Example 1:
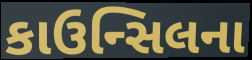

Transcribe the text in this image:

કાઉન્સિલના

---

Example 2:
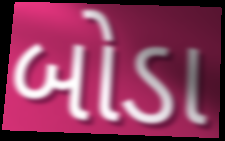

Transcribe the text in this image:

બોડા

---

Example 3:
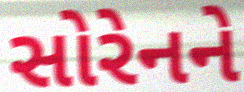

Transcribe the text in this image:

સોરેનને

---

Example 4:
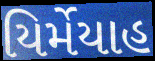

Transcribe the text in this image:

યિર્મેયાહ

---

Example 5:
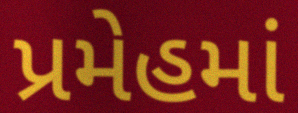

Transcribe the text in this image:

પ્રમેહમાં